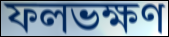
ফলভক্ষণ